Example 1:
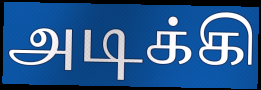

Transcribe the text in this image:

அடிக்கி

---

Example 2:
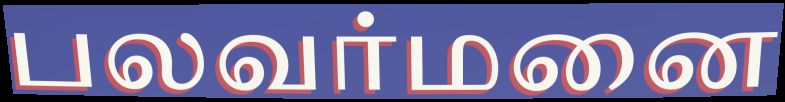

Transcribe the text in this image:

பலவர்மனை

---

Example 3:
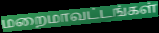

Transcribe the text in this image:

மறைமாவட்டங்கள்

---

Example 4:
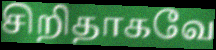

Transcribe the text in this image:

சிறிதாகவே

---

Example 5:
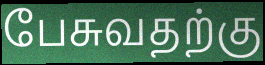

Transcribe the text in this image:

பேசுவதற்கு